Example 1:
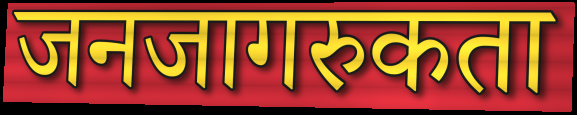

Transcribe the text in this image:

जनजागरुकता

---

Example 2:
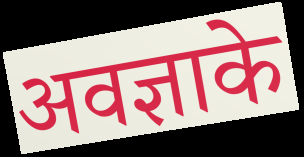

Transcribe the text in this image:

अवज्ञाके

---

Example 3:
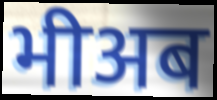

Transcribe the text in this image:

भीअब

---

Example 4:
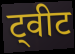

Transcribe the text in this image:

ट्वीट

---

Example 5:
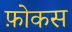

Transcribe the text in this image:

फ़ोकस